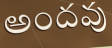
అందవు